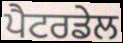
ਪੈਟਰਡੇਲ